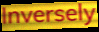
Inversely